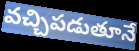
వచ్చిపడుతూనే